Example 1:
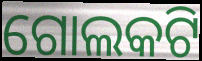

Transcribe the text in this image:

ଗୋଲକଟି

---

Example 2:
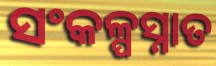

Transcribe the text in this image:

ସଂକଳ୍ପସ୍ନାତ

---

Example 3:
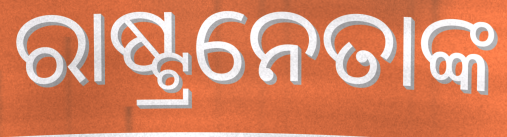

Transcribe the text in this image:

ରାଷ୍ଟ୍ରନେତାଙ୍କ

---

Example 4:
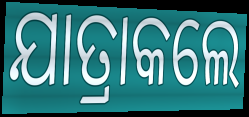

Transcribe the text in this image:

ଯାତ୍ରାକଲେ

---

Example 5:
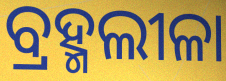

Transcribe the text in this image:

ବ୍ରହ୍ମଲୀଳା